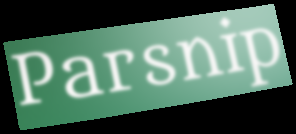
Parsnip